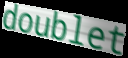
doublet